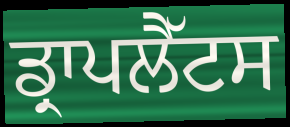
ਡ੍ਰਾਪਲੈੱਟਸ